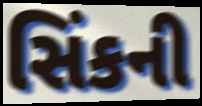
સિંકની